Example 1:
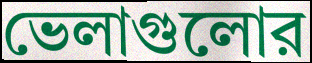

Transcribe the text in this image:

ভেলাগুলোর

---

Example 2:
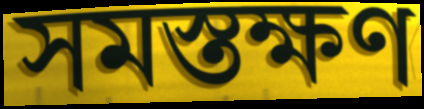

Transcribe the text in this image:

সমস্তক্ষণ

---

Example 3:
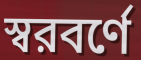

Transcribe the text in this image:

স্বরবর্ণে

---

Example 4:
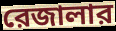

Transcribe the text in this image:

রেজালার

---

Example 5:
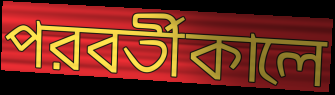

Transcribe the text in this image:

পরবর্তীকালে